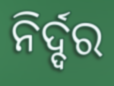
ନିର୍ଦ୍ଦର